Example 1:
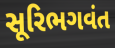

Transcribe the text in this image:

સૂરિભગવંત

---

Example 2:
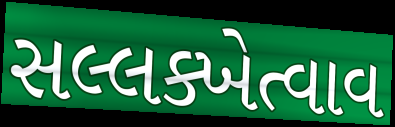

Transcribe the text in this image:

સલ્લક્ખેત્વાવ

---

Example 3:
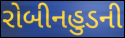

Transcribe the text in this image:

રોબીનહુડની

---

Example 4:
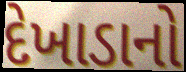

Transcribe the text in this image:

દેખાડાનો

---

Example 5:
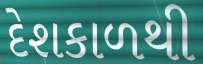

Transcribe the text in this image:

દેશકાળથી